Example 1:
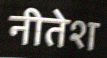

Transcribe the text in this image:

नीतेश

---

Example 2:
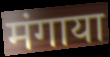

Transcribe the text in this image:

मंगाया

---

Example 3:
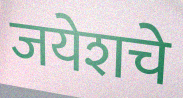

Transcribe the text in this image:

जयेशचे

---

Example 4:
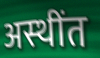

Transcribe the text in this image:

अस्थींत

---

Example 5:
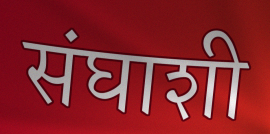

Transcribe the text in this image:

संघाशी